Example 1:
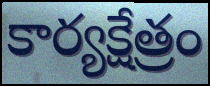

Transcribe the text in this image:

కార్యక్షేత్రం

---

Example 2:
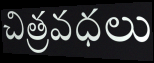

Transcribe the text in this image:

చిత్రవధలు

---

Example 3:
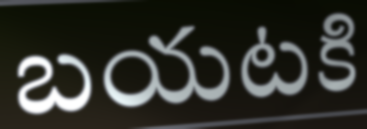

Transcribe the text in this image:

బయటకి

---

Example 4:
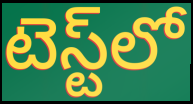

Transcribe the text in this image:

టెస్ట్‌లో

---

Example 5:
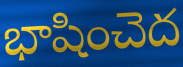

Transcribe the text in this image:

భాషించెద